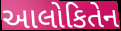
આલોકિતેન